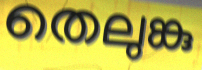
തെലുങ്കു